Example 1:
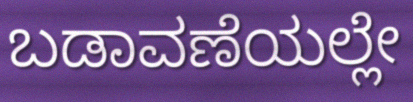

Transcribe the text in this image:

ಬಡಾವಣೆಯಲ್ಲೇ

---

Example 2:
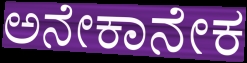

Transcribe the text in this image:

ಅನೇಕಾನೇಕ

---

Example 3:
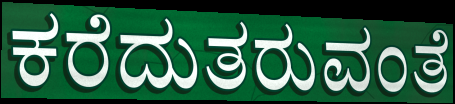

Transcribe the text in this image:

ಕರೆದುತರುವಂತೆ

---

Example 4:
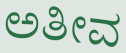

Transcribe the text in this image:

ಅತೀವ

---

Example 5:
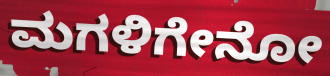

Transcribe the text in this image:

ಮಗಳಿಗೇನೋ